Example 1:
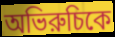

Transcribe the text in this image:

অভিরুচিকে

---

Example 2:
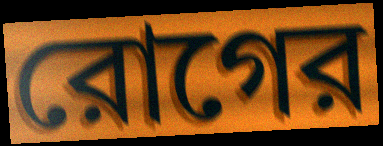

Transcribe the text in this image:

রোগের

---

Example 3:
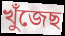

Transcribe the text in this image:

খুঁজেছ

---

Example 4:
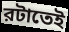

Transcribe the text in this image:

রটাতেই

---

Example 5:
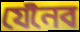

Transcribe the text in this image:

যেনৈব